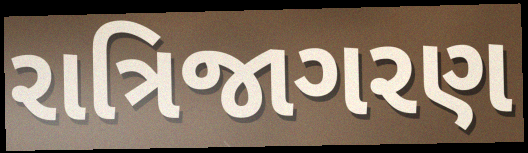
રાત્રિજાગરણ